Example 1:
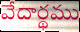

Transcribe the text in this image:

వేదార్థము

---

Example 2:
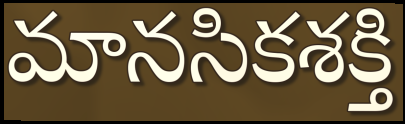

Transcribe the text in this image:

మానసికశక్తి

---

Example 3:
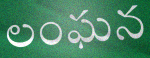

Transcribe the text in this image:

లంఘన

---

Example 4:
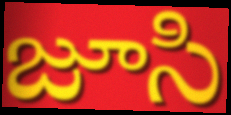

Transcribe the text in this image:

జూసి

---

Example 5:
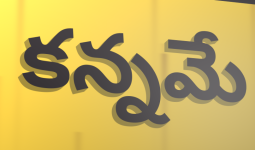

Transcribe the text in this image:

కన్నమే